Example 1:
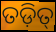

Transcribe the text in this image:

ତଡ଼ିତ୍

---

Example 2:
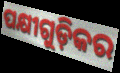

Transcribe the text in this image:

ପକ୍ଷୀଗୁଡ଼ିକର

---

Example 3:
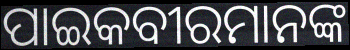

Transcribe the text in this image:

ପାଇକବୀରମାନଙ୍କ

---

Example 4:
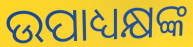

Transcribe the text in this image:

ଉପାଧ୍ୟକ୍ଷଙ୍କ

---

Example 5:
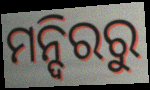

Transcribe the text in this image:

ମନ୍ଦିରରୁ